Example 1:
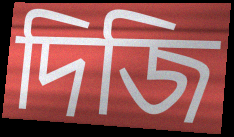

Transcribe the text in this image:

দিজি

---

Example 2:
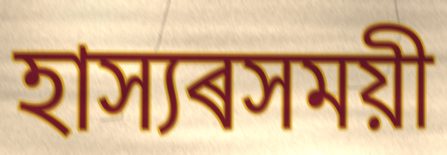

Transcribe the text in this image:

হাস্যৰসময়ী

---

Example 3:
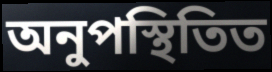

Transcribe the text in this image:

অনুপস্থিতিত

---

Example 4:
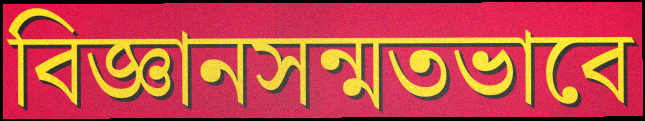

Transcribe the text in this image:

বিজ্ঞানসন্মতভাবে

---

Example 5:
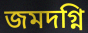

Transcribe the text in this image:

জমদগ্নি